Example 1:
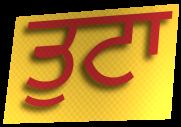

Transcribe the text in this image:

ਤੁਟਾ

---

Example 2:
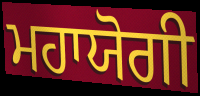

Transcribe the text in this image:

ਮਹਾਯੋਗੀ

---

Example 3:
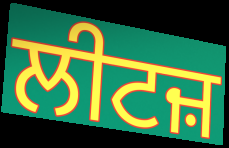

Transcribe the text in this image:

ਲੀਟਜ਼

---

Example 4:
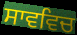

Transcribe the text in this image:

ਸਾਵਵਿਚ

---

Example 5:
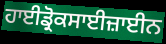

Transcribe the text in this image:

ਹਾਈਡ੍ਰੋਕਸਾਈਜ਼ਾਈਨ